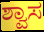
ಶ್ವಾಸ